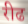
रीढ